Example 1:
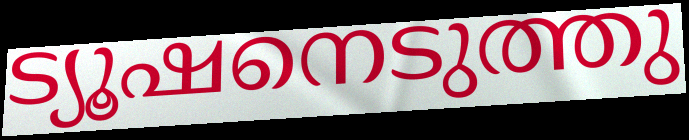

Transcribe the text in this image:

ട്യൂഷനെടുത്തു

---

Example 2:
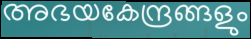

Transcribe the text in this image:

അഭയകേന്ദ്രങ്ങളും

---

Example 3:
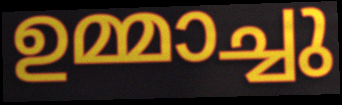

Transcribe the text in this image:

ഉമ്മാച്ചു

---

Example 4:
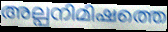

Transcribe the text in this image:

അല്പനിമിഷത്തെ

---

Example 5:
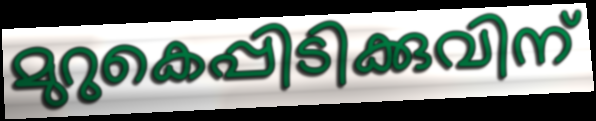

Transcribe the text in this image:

മുറുകെപ്പിടിക്കുവിന്